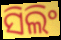
ସିଲିଂ